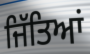
ਜਿੱਤਿਆਂ